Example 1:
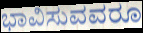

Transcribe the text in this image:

ಭಾವಿಸುವವರೂ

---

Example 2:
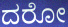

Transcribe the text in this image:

ದರೋ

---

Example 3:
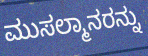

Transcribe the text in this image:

ಮುಸಲ್ಮಾನರನ್ನು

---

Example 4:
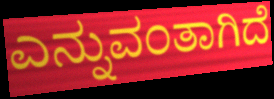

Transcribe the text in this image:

ಎನ್ನುವಂತಾಗಿದೆ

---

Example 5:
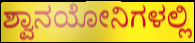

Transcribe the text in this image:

ಶ್ವಾನಯೋನಿಗಳಲ್ಲಿ